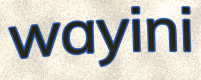
wayini